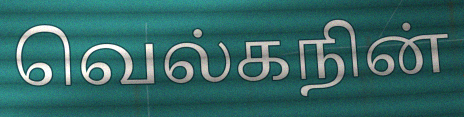
வெல்கநின்